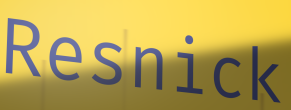
Resnick